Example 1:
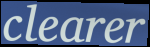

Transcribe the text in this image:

clearer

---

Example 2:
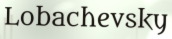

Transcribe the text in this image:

Lobachevsky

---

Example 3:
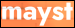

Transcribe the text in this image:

mayst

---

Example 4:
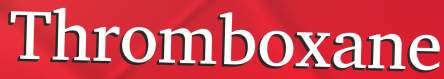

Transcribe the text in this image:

Thromboxane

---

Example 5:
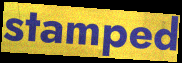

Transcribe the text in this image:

stamped